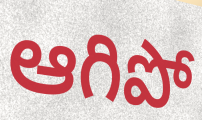
ఆగిపో